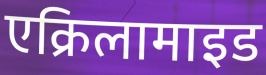
एक्रिलामाइड